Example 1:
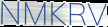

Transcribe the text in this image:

NMKRV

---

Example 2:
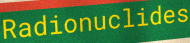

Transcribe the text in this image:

Radionuclides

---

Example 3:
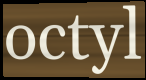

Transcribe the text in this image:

octyl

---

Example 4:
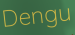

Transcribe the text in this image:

Dengu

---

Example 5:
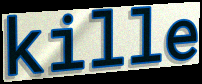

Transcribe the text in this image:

kille